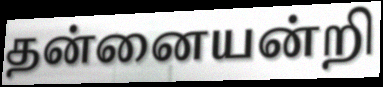
தன்னையன்றி